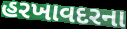
હરખાવદરના